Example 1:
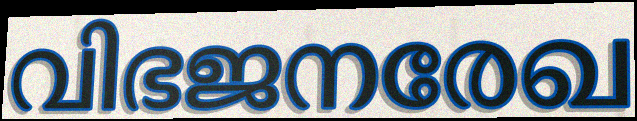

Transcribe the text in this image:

വിഭജനരേഖ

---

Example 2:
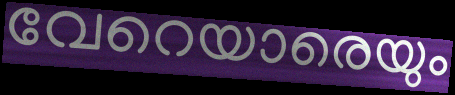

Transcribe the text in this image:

വേറെയാരെയും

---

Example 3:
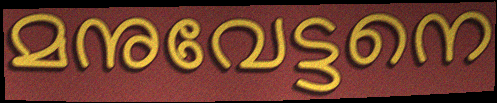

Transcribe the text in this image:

മനുവേട്ടനെ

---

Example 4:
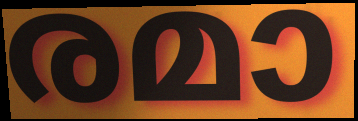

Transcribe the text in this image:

രമാ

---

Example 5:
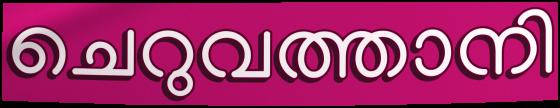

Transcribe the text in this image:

ചെറുവത്താനി